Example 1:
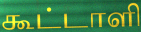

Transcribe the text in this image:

கூட்டாளி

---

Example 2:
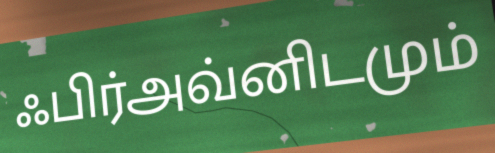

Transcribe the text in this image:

ஃபிர்அவ்னிடமும்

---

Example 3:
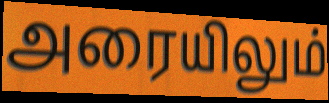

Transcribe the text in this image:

அரையிலும்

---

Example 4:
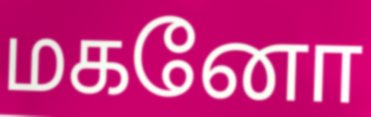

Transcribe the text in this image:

மகனோ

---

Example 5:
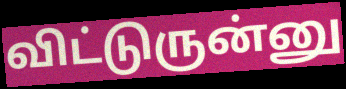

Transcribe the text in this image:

விட்டுருன்னு